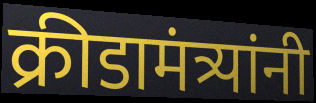
क्रीडामंत्र्यांनी